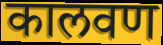
कालवण